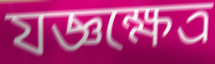
যজ্ঞক্ষেত্র